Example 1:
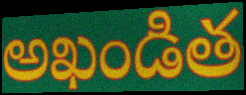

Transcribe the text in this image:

అఖండిత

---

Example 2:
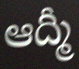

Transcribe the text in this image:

ఆద్మీ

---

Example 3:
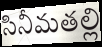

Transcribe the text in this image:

సినీమతల్లి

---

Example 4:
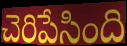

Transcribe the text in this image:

చెరిపేసింది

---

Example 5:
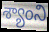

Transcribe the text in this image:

శ్యాంని